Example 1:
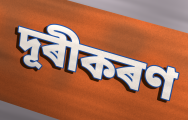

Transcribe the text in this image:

দূৰীকৰণ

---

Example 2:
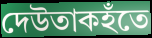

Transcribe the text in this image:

দেউতাকহঁতে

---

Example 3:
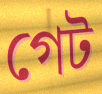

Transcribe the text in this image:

গেট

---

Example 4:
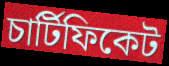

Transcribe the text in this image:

চাৰ্টিফিকেট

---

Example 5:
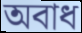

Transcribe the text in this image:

অবাধ